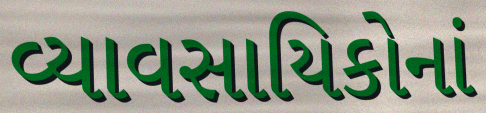
વ્યાવસાયિકોનાં